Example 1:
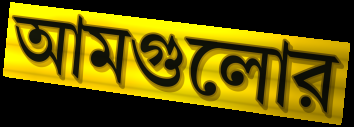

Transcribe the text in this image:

আমগুলোর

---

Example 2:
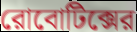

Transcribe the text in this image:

রোবোটিক্সের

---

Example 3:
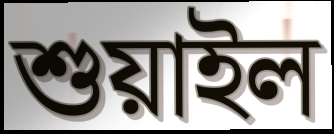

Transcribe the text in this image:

শুয়াইল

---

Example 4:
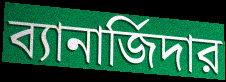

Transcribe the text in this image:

ব্যানার্জিদার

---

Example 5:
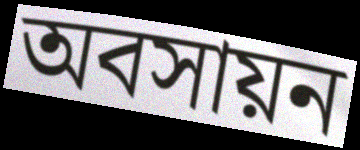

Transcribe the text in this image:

অবসায়ন